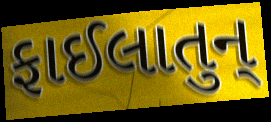
ફાઈલાતુન્